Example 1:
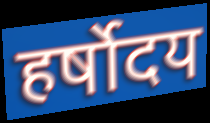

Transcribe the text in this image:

हर्षोदय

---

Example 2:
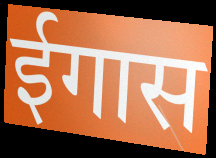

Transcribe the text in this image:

ईगास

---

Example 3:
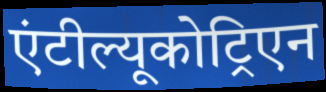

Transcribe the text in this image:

एंटील्यूकोट्रिएन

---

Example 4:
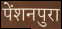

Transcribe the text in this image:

पेंशनपुरा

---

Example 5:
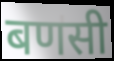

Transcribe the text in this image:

बणसी